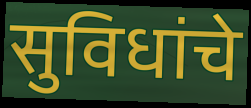
सुविधांचे